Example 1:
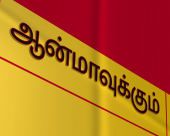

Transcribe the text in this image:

ஆன்மாவுக்கும்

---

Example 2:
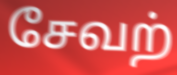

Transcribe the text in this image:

சேவற்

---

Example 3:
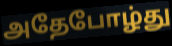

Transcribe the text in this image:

அதேபோழ்து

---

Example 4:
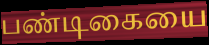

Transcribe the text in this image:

பண்டிகையை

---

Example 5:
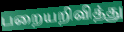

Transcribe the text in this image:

பறையறிவித்து